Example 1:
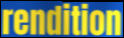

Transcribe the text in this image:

rendition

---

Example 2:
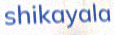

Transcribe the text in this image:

shikayala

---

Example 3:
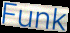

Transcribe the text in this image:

Funk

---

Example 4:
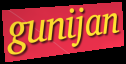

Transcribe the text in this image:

gunijan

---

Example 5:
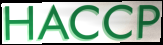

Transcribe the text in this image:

HACCP